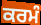
ਕਰਮੰ